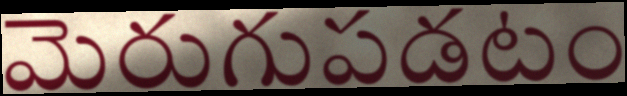
మెరుగుపడటం